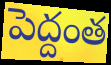
పెద్దంత